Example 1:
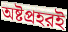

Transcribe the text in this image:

অষ্টপ্রহরই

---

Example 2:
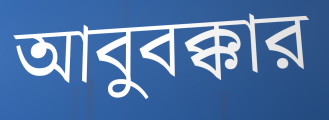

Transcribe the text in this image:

আবুবক্কার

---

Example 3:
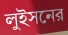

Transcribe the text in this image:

লুইসনের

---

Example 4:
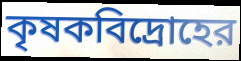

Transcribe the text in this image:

কৃষকবিদ্রোহের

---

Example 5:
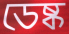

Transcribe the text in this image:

ডেষ্ক